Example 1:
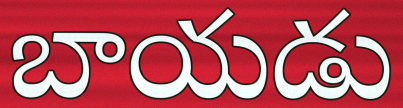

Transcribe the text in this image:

బాయడు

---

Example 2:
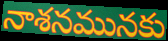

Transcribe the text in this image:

నాశనమునకు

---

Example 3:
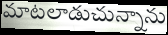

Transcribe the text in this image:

మాటలాడుచున్నాను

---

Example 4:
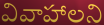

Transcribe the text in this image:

వివాహాలని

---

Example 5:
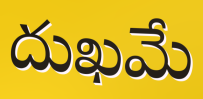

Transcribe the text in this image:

దుఖమే